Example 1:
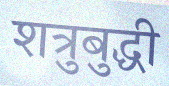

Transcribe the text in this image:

शत्रुबुद्धी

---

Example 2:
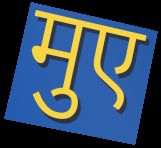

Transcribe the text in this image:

मुए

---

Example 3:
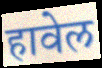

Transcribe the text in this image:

हावेल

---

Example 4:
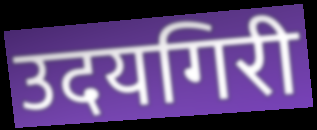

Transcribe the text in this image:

उदयगिरी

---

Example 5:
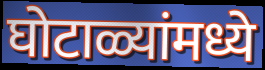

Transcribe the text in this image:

घोटाळ्यांमध्ये